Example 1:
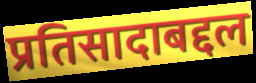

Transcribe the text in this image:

प्रतिसादाबद्दल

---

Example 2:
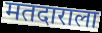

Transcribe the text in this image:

मतदाराला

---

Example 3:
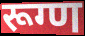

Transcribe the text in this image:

रूग्ण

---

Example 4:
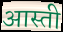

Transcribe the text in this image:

आस्ती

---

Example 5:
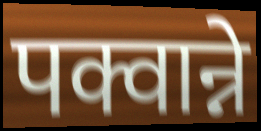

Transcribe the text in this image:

पक्वान्ने